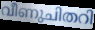
വീണുചിതറി